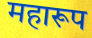
महारूप